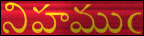
నిహముఁ